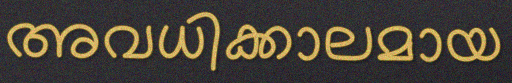
അവധിക്കാലമായ